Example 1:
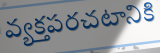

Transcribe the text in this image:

వ్యక్తపరచటానికి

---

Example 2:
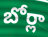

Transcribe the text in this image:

బోర్లా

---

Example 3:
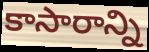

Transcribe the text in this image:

కాసారాన్ని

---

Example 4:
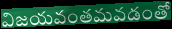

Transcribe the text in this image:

విజయవంతమవడంతో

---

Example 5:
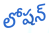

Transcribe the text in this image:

లోషన్